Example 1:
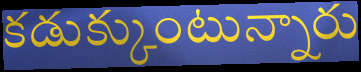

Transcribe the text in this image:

కడుక్కుంటున్నారు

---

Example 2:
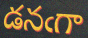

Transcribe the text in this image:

డనఁగా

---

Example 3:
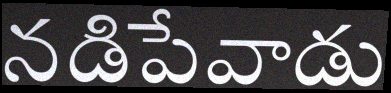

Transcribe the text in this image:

నడిపేవాడు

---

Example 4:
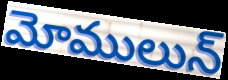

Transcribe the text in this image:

మోములున్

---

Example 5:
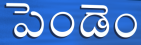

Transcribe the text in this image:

పెండెం